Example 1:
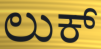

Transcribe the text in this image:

ಲುಕ್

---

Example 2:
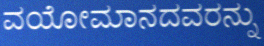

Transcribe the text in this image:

ವಯೋಮಾನದವರನ್ನು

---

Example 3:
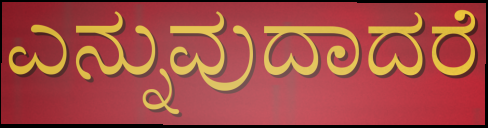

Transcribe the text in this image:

ಎನ್ನುವುದಾದರೆ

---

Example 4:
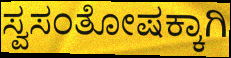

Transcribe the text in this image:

ಸ್ವಸಂತೋಷಕ್ಕಾಗಿ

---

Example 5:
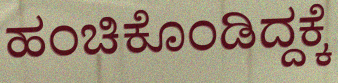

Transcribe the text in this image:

ಹಂಚಿಕೊಂಡಿದ್ದಕ್ಕೆ